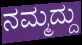
ನಮ್ಮದ್ದು